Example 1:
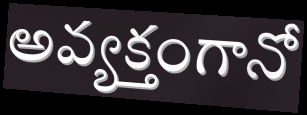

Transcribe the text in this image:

అవ్యక్తంగానో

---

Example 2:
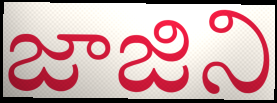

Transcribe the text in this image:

జాజిని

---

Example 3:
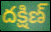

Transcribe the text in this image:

దక్షిణ్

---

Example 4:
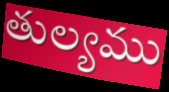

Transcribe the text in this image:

తుల్యము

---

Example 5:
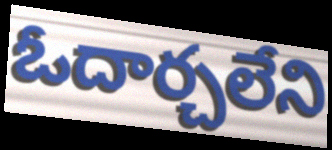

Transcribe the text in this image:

ఓదార్చలేని